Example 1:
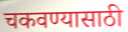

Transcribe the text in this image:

चकवण्यासाठी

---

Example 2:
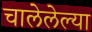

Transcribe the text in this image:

चालेलेल्या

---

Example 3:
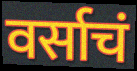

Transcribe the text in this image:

वर्साचं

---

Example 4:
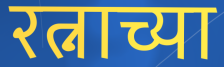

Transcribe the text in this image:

रत्नाच्या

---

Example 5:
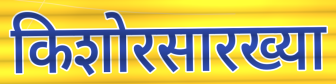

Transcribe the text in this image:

किशोरसारख्या